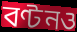
বণ্টনও